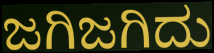
ಜಗಿಜಗಿದು